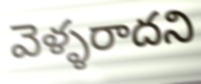
వెళ్ళరాదని